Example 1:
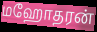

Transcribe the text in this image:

மஹோதரன்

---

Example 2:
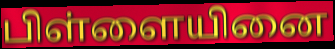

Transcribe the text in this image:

பிள்ளையினை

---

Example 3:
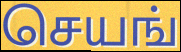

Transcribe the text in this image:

செயங்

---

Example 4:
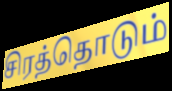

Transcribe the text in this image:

சிரத்தொடும்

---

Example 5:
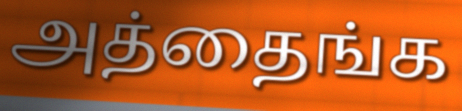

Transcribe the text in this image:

அத்தைங்க